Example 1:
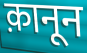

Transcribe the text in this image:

क़ानून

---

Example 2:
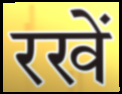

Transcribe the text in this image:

रखें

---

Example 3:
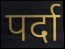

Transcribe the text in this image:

पर्दा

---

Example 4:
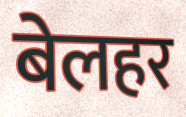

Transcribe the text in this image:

बेलहर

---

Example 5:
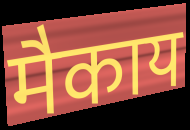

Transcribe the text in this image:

मैकाय